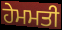
ਹੇਮਮਤੀ